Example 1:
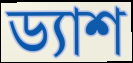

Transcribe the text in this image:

ড্যাশ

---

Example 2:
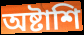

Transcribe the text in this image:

অষ্টাশি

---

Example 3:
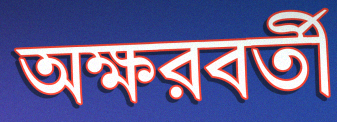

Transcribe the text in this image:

অক্ষরবর্তী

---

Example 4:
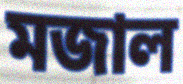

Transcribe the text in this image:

মজাল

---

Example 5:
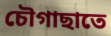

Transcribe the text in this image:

চৌগাছাতে